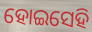
ହୋଇସେହି